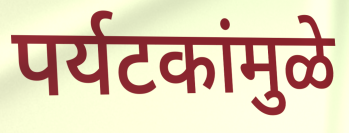
पर्यटकांमुळे